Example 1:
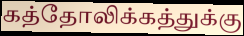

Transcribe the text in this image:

கத்தோலிக்கத்துக்கு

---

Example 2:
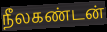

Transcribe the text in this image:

நீலகண்டன்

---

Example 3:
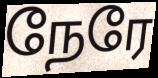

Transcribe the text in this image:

நேரே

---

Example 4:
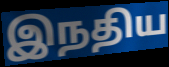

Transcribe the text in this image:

இநதிய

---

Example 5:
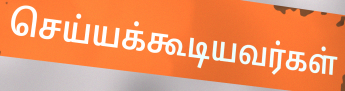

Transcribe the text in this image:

செய்யக்கூடியவர்கள்